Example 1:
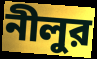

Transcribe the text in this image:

নীলুর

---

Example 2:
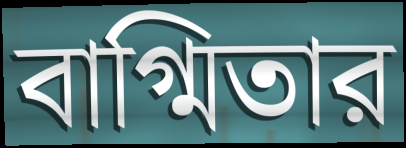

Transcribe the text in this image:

বাগ্মিতার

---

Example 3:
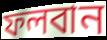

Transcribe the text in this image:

ফলবান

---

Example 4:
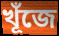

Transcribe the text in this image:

খূঁজে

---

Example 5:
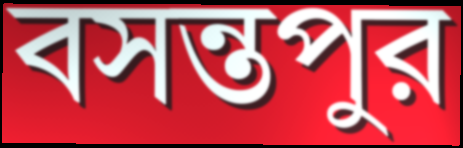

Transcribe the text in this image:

বসন্তপুর